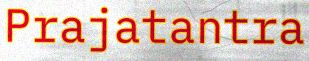
Prajatantra